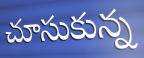
చూసుకున్న